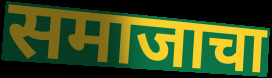
समाजाचा